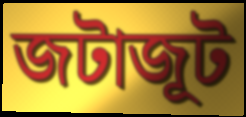
জটাজূট